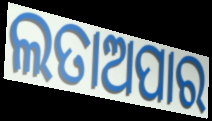
ଲତାଅପାର